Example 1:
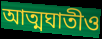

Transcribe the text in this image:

আত্মঘাতীও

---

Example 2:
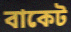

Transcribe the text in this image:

বাকেট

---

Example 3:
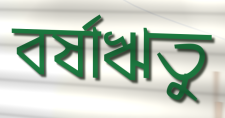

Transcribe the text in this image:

বর্ষাঋতু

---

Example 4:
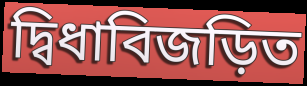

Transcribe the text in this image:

দ্বিধাবিজড়িত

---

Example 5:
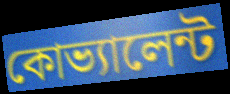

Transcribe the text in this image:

কোভ্যালেন্ট